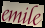
emile